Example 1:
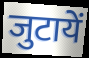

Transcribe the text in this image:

जुटायें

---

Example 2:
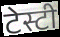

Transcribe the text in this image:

टेस्‍टी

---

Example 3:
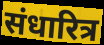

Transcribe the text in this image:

संधारित्र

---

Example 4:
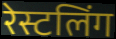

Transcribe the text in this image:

रेस्टलिंग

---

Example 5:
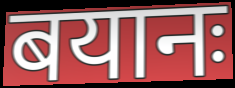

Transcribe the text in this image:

बयानः